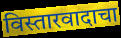
विस्तारवादाचा